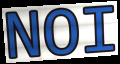
NOI